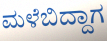
ಮಳೆಬಿದ್ದಾಗ